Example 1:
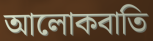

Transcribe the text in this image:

আলোকবাতি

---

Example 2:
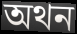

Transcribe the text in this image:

অথন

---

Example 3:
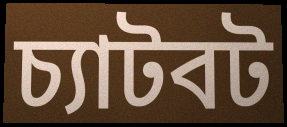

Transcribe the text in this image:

চ্যাটবট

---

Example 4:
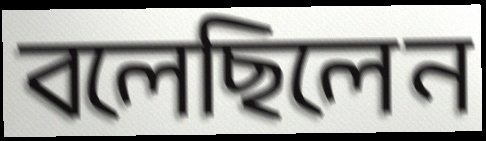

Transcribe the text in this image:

বলেছিলেন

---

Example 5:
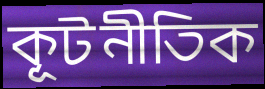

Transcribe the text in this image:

কূটনীতিক